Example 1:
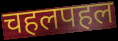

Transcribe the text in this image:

चहलपहल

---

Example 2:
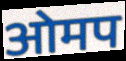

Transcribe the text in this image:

ओमप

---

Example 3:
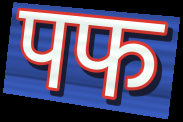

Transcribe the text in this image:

पफ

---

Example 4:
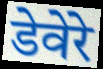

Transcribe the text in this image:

डेवेरे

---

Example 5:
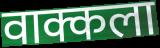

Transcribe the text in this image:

वाक्कला